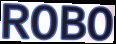
ROBO